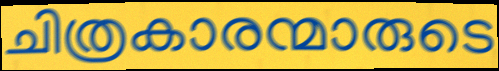
ചിത്രകാരന്മാരുടെ